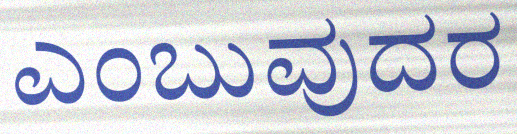
ಎಂಬುವುದರ